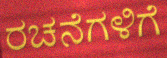
ರಚನೆಗಳಿಗೆ